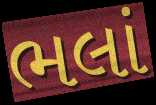
ભલાં